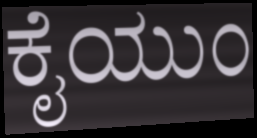
ಕೈಯುಂ